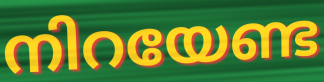
നിറയേണ്ട